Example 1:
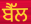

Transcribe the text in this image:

ਬੈੱਲ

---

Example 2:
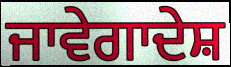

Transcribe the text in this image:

ਜਾਵੇਗਾਦੇਸ਼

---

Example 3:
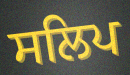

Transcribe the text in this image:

ਸਲਿਪ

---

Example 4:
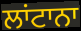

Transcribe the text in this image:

ਲਾਂਟਾਨਾ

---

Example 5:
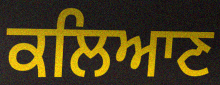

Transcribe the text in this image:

ਕਲਿਆਣ